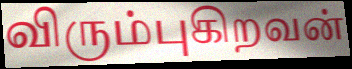
விரும்புகிறவன்